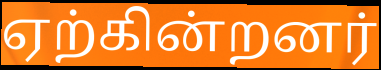
ஏற்கின்றனர்